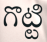
గొట్టి